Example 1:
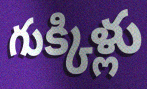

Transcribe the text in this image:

గుక్కిళ్లు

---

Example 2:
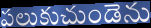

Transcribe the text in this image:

పలుకుచుండెను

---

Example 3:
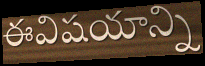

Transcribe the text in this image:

ఈవిషయాన్ని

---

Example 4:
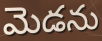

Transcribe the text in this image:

మెడను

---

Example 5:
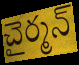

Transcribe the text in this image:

చైర్మన్